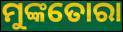
ମୁଙ୍କତୋରା